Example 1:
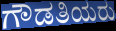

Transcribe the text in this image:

ಗೌಡತಿಯರು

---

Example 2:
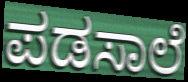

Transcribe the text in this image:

ಪಡಸಾಲೆ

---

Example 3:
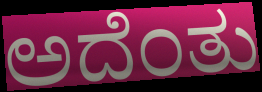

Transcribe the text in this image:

ಅದೆಂತು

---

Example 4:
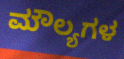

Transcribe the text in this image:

ಮೌಲ್ಯಗಳ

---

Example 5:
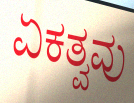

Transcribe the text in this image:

ಏಕತ್ವವು